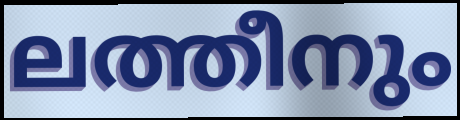
ലത്തീനും